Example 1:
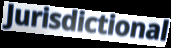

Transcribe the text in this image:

Jurisdictional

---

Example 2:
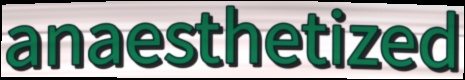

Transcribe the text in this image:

anaesthetized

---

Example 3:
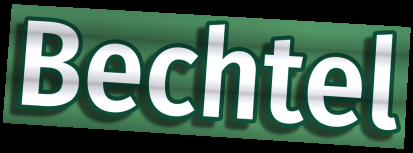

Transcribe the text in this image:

Bechtel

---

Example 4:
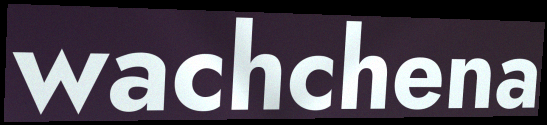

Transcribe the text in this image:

wachchena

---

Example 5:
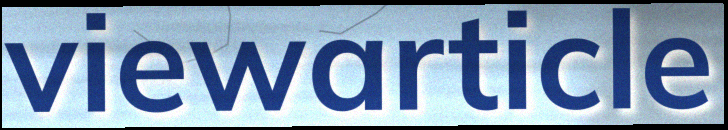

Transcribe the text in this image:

viewarticle